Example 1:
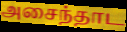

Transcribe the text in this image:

அசைந்தாட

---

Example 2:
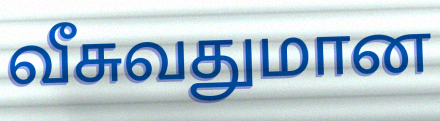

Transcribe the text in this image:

வீசுவதுமான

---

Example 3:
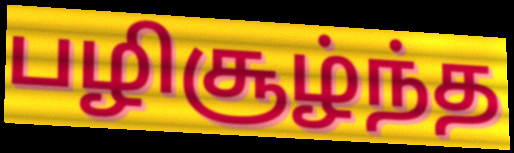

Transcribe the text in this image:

பழிசூழ்ந்த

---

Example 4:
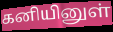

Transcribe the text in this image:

கனியினுள்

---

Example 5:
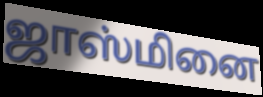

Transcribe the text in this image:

ஜாஸ்மினை